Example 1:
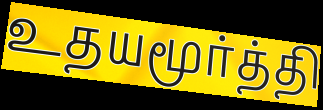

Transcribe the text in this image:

உதயமூர்த்தி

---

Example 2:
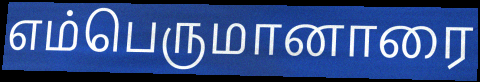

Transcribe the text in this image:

எம்பெருமானாரை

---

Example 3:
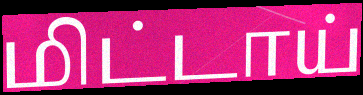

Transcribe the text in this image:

மிட்டாய்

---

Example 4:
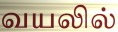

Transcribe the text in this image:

வயலில்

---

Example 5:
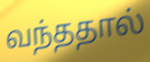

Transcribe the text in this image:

வந்ததால்